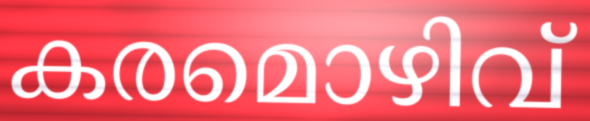
കരമൊഴിവ്